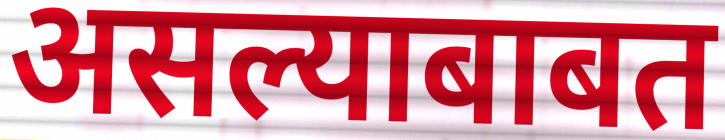
असल्याबाबत